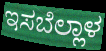
ಇಸಬೆಲ್ಲಾಳ